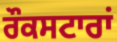
ਰੌਕਸਟਾਰਾਂ